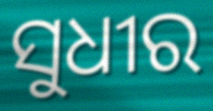
ସୁଧୀର